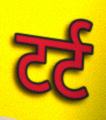
टर्ट